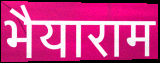
भैयाराम